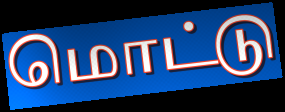
மொட்டு